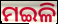
ମଇଳି